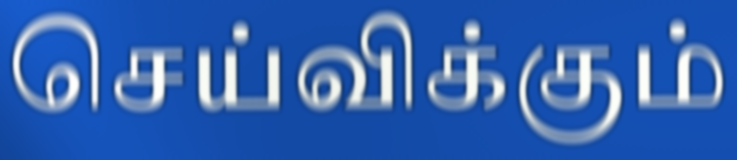
செய்விக்கும்